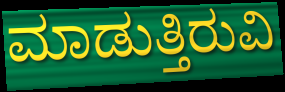
ಮಾಡುತ್ತಿರುವಿ